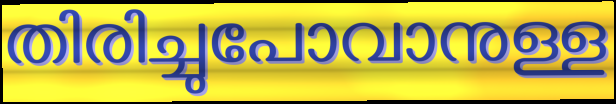
തിരിച്ചുപോവാനുള്ള